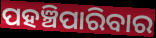
ପହଞ୍ଚିପାରିବାର